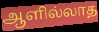
ஆளில்லாத